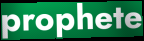
prophete